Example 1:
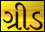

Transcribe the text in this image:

ગ્રીડ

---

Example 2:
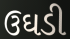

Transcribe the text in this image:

ઉઘડી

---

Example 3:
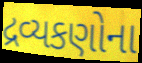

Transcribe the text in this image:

દ્રવ્યકણોના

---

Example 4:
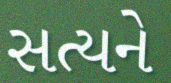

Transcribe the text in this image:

સત્યને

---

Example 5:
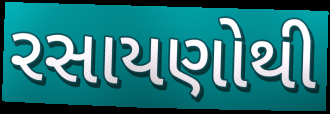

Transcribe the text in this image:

રસાયણોથી